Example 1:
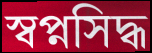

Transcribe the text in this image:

স্বপ্নসিদ্ধ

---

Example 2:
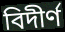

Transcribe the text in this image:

বিদীর্ণ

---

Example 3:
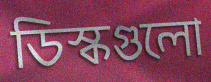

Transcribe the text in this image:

ডিস্কগুলো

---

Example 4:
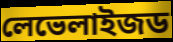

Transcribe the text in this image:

লেভেলাইজড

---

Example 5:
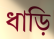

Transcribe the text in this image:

ধাড়ি